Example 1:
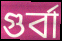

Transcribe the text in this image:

গুর্বা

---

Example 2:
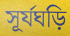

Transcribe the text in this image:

সূর্যঘড়ি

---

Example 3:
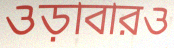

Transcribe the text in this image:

ওড়াবারও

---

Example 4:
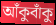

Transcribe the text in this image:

আঁকুবাঁকু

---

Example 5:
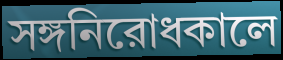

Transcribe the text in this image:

সঙ্গনিরোধকালে